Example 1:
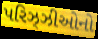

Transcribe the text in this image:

પરિઝ્ઝીઓનો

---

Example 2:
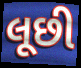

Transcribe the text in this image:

લૂછી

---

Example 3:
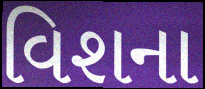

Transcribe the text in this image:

વિશના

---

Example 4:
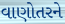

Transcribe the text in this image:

વાણોતરને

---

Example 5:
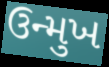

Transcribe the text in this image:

ઉન્મુખ